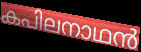
കപിലനാഥൻ